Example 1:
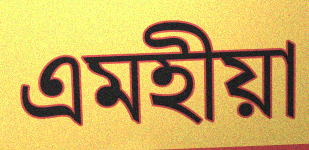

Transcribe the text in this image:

এমহীয়া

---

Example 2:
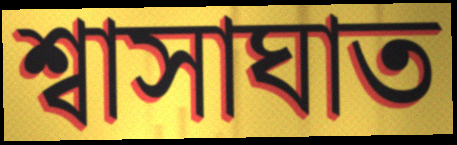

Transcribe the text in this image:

শ্বাসাঘাত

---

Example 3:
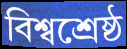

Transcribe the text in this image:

বিশ্বশ্ৰেষ্ঠ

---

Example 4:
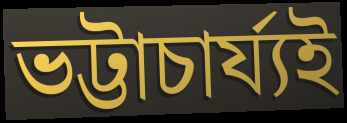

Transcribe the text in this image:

ভট্টাচাৰ্য্যই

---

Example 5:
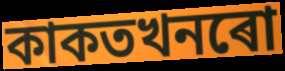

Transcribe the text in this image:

কাকতখনৰো